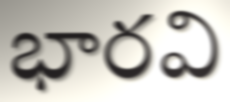
భారవి